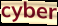
cyber